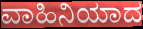
ವಾಹಿನಿಯಾದ